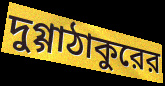
দুগ্গাঠাকুরের